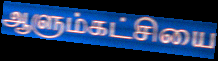
ஆளும்கட்சியை